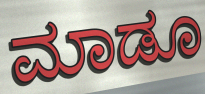
ಮಾಡೂ